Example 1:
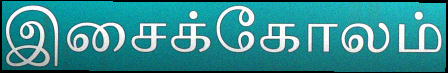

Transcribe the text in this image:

இசைக்கோலம்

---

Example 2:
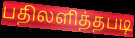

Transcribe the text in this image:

பதிலளித்தபடி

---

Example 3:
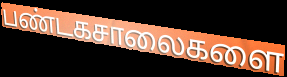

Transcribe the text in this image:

பண்டகசாலைகளை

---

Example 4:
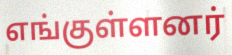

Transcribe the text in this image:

எங்குள்ளனர்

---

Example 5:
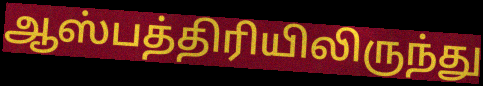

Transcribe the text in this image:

ஆஸ்பத்திரியிலிருந்து